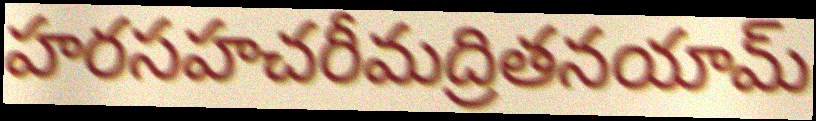
హరసహచరీమద్రితనయామ్